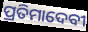
ପ୍ରତିମାଦେବୀ